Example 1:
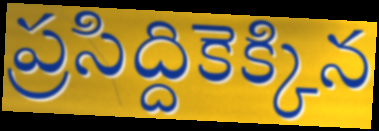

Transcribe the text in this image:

ప్రసిద్దికెక్కిన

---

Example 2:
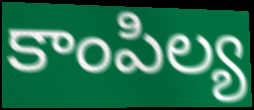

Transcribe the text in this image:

కాంపిల్య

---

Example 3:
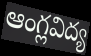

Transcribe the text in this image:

ఆంగ్లవిద్య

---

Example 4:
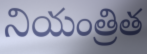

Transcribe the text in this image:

నియంత్రిత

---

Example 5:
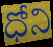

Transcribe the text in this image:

ధోని